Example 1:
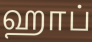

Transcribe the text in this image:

ஹாப்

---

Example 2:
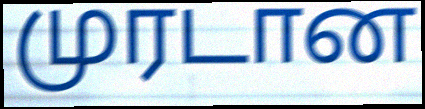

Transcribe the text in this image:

முரடான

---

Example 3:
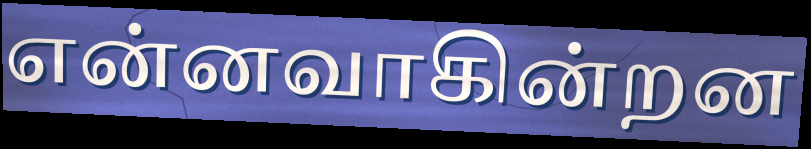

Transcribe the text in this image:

என்னவாகின்றன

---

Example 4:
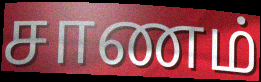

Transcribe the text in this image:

சாணம்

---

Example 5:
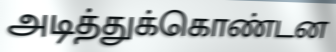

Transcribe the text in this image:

அடித்துக்கொண்டன